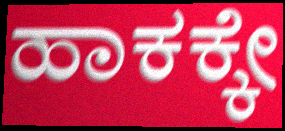
ಹಾಕಕ್ಕೇ